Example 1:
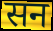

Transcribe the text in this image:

सन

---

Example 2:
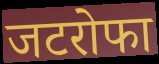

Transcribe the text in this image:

जटरोफा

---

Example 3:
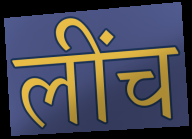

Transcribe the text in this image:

लींच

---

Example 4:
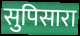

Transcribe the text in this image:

सुपिसारा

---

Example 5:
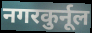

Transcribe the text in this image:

नगरकुर्नूल